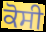
ਕੋਸੀ